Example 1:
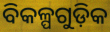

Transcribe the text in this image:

ବିକଳ୍ପଗୁଡ଼ିକ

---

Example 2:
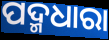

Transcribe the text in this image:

ପଦ୍ମଧାରା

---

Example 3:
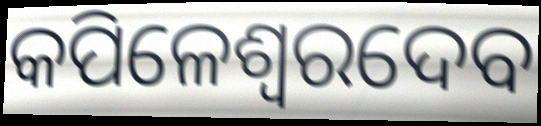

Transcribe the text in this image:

କପିଳେଶ୍ୱରଦେବ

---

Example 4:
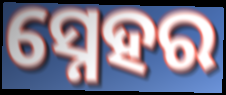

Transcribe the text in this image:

ସ୍ନେହର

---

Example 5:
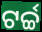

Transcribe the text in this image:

ଟର୍ଚ୍ଚ